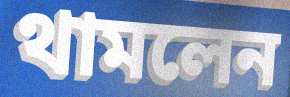
থামলেন